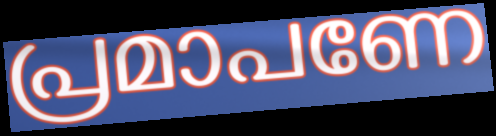
പ്രമാപണേ